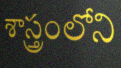
శాస్త్రంలోని